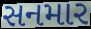
સનમાર